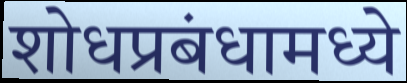
शोधप्रबंधामध्ये